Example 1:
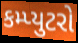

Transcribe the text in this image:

કમ્પ્યુટરો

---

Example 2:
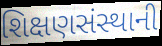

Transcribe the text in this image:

શિક્ષણસંસ્થાની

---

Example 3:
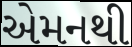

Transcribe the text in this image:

એમનથી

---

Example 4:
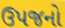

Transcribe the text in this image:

ઉપજનો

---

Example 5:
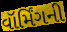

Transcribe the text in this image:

વૉર્મિંગની